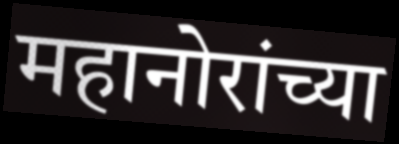
महानोरांच्या